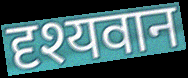
दृश्यवान